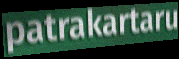
patrakartaru